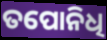
ତପୋନିଧି